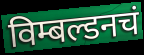
विम्बल्डनचं